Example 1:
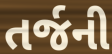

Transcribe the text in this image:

તર્જની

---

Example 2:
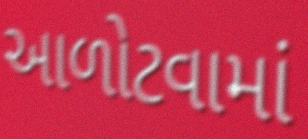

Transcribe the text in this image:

આળોટવામાં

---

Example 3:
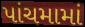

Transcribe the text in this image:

પાંચમામાં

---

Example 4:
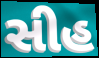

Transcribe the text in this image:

સીહ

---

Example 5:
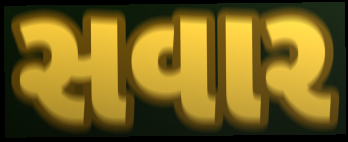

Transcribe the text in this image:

સવાર